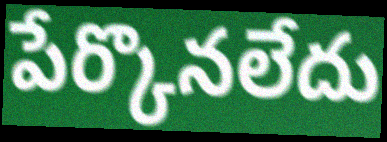
పేర్కొనలేదు